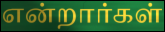
என்றார்கள்